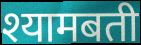
श्यामबती